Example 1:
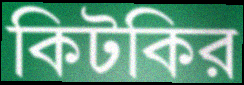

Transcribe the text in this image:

কিটকির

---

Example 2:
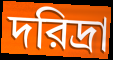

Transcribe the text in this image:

দরিদ্রা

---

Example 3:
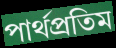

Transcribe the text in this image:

পার্থপ্রতিম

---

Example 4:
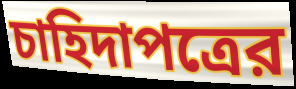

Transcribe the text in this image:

চাহিদাপত্রের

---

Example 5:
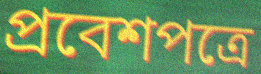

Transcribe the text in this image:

প্রবেশপত্রে